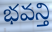
భవన్తి